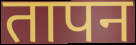
तापन